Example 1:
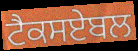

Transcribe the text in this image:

ਟੈਕਸਏਬਲ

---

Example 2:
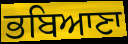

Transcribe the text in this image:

ਭਬਿਆਣਾ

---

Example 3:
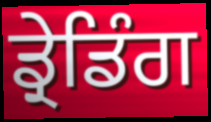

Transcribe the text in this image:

ਡ੍ਰੇਡਿੰਗ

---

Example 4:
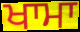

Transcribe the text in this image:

ਖਾਮਾ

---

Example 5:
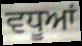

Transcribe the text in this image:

ਵਧੂਆਂ